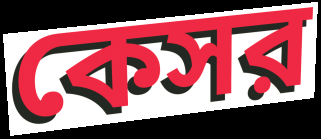
কেসর